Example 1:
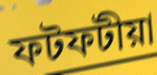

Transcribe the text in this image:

ফটফটীয়া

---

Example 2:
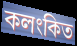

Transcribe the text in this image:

কলংকিত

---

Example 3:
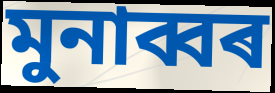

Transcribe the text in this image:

মুনাব্বৰ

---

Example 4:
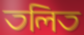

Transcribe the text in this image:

তলিত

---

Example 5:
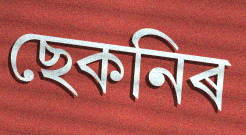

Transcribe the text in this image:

ছেকনিৰ